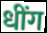
धींग